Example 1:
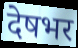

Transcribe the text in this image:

देषभर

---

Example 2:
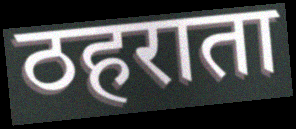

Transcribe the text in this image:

ठहराता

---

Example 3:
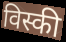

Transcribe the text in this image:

विस्की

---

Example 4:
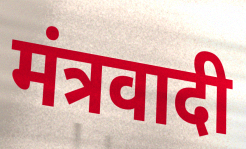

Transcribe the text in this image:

मंत्रवादी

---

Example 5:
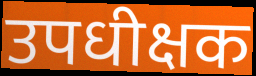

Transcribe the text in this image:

उपधीक्षक